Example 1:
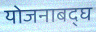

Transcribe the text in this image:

योजनाबद्घ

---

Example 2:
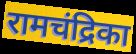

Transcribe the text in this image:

रामचंद्रिका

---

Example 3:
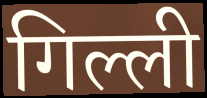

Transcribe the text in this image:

गिल्ली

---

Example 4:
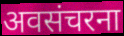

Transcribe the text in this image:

अवसंचरना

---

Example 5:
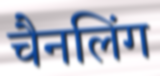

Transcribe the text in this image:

चैनलिंग